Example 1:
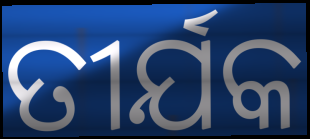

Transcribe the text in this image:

ତୀର୍ଯକ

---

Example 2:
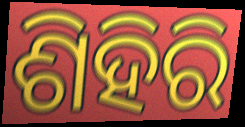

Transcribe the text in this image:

ଶିହିରି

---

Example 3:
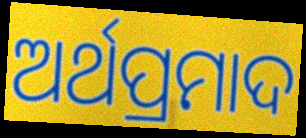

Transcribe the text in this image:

ଅର୍ଥପ୍ରମାଦ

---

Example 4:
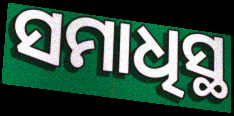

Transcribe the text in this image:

ସମାଧିସ୍ଥ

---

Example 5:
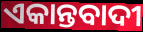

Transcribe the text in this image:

ଏକାନ୍ତବାଦୀ